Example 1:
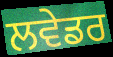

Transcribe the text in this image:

ਲਵੇਡਰ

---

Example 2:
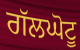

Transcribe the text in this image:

ਗੱਲਘੋਟੂ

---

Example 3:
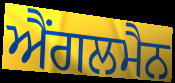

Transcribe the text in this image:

ਐਂਗਲਮੈਨ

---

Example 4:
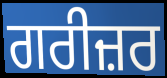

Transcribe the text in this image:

ਗਰੀਜ਼ਰ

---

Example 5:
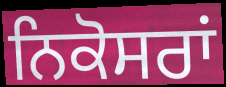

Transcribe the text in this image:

ਨਿਕੋਸਰਾਂ